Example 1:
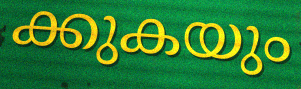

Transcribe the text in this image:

ക്കുകയും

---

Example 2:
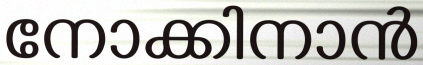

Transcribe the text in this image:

നോക്കിനാൻ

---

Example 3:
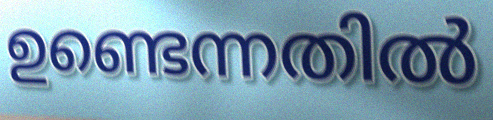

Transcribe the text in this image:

ഉണ്ടെന്നതിൽ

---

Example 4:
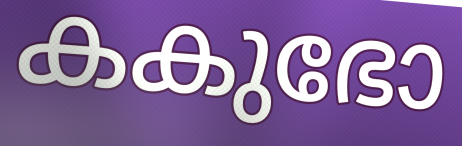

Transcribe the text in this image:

കകുഭോ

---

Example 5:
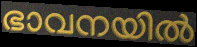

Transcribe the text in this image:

ഭാവനയിൽ